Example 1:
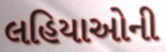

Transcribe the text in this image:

લહિયાઓની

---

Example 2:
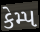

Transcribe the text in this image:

કેમ્પ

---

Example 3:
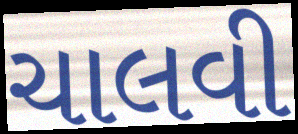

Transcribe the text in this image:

ચાલવી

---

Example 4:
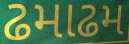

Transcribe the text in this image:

ઢમાઢમ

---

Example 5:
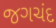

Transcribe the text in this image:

જગચંદ